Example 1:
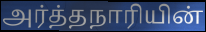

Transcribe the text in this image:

அர்த்தநாரியின்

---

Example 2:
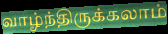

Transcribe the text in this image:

வாழ்ந்திருக்கலாம்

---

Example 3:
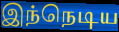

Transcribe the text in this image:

இந்நெடிய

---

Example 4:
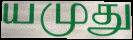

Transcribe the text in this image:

யமுது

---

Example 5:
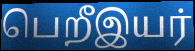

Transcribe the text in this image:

பெறீஇயர்